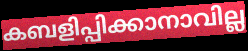
കബളിപ്പിക്കാനാവില്ല